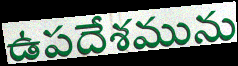
ఉపదేశమును